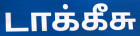
டாக்கீசு